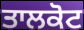
ਤਾਲਕੋਟ